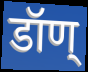
डॉण्